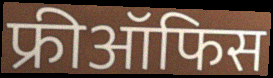
फ्रीऑफिस